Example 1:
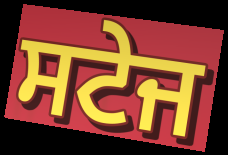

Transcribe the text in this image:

ਸਟੇਜ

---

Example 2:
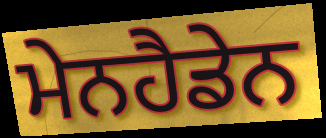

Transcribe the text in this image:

ਮੇਨਹੈਡੇਨ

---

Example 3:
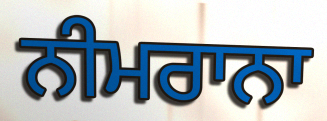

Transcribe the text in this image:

ਨੀਮਰਾਨਾ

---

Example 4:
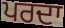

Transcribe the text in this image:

ਪਰਦਾ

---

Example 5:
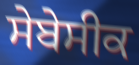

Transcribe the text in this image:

ਸੇਬੇਸੀਕ